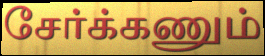
சேர்க்கணும்